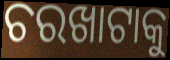
ଚରଖାଟାକୁ